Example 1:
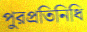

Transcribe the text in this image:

পুরপ্রতিনিধি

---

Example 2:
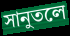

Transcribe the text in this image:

সানুতলে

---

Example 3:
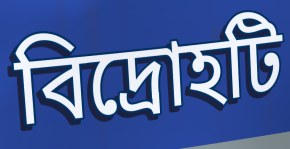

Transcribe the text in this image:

বিদ্রোহটি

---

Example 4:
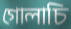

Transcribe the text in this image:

গোলাচি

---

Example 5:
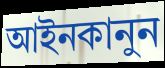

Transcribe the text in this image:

আইনকানুন